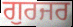
ਗੁਰਜਰ